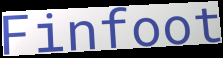
Finfoot